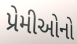
પ્રેમીઓનો